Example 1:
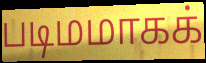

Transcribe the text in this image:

படிமமாகக்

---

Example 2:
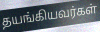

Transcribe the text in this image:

தயங்கியவர்கள்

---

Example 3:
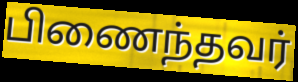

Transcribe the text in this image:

பிணைந்தவர்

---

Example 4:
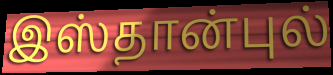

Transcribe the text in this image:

இஸ்தான்புல்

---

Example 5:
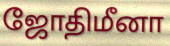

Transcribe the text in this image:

ஜோதிமீனா